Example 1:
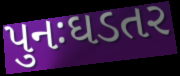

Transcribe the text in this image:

પુનઃઘડતર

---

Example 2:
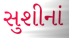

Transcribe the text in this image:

સુશીનાં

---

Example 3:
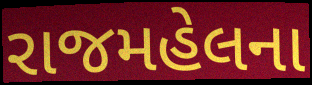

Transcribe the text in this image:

રાજમહેલના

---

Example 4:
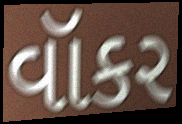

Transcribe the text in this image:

વૉકર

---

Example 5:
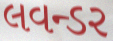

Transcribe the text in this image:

લવન્ડર